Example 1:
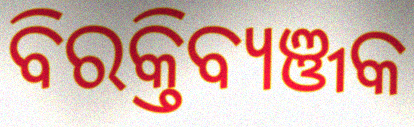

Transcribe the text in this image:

ବିରକ୍ତିବ୍ୟଞ୍ଜକ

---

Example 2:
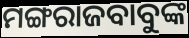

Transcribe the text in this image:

ମଙ୍ଗରାଜବାବୁଙ୍କ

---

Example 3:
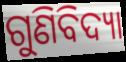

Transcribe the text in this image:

ଗୁଣିବିଦ୍ୟା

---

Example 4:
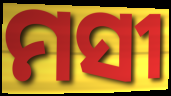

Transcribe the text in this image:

ମସୀ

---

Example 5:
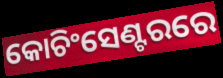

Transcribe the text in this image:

କୋଚିଂସେଣ୍ଟରରେ